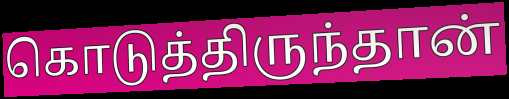
கொடுத்திருந்தான்